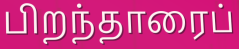
பிறந்தாரைப்